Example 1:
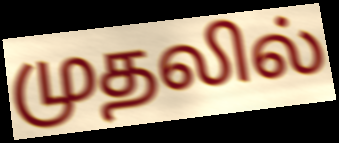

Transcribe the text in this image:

முதலில்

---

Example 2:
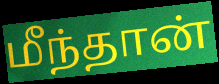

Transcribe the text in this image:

மீந்தான்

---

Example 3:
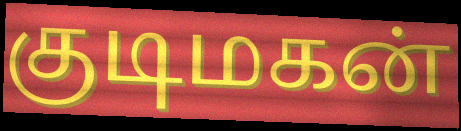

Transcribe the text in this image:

குடிமகன்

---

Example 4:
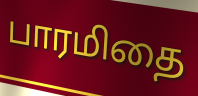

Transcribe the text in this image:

பாரமிதை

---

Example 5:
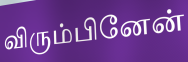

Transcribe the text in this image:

விரும்பினேன்